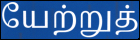
யேற்றுத்